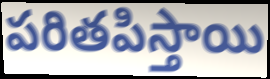
పరితపిస్తాయి